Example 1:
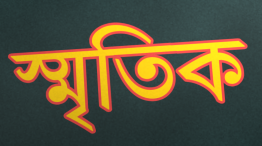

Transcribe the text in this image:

স্মৃতিক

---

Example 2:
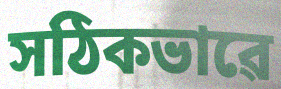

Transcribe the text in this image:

সঠিকভাৱে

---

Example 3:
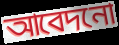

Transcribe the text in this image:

আবেদনো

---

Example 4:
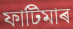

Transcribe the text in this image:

ফাটিমাৰ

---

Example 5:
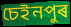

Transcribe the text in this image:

চেইনপুৰ